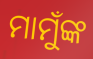
ମାମୁଁଙ୍କ